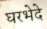
घरभेदे